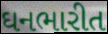
ઘનભારીત